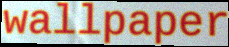
wallpaper